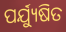
ପର୍ଯ୍ୟୁଷିତ